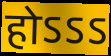
होऽऽऽ